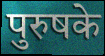
पुरुषके